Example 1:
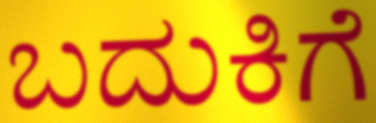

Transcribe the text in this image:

ಬದುಕಿಗೆ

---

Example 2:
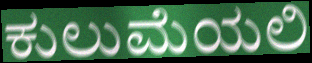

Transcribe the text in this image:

ಕುಲುಮೆಯಲಿ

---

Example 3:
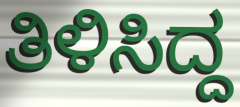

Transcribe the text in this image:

ತಿಳಿಸಿದ್ದ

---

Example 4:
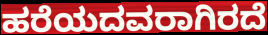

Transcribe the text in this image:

ಹರೆಯದವರಾಗಿರದೆ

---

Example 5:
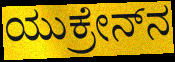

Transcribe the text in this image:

ಯುಕ್ರೇನ್‌ನ